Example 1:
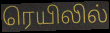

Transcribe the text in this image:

ரெயிலில்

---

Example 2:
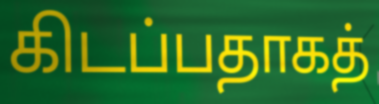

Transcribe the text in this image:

கிடப்பதாகத்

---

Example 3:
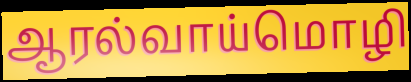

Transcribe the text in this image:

ஆரல்வாய்மொழி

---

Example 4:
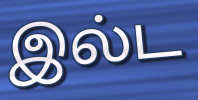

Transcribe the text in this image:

இல்ட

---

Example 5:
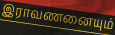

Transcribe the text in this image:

இராவணனையும்